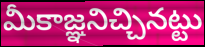
మీకాజ్ఞనిచ్చినట్టు